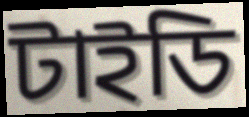
টাইডি